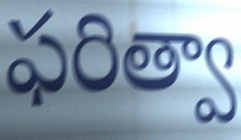
ఫరిత్వా